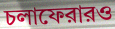
চলাফেরারও